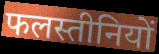
फलस्तीनियों